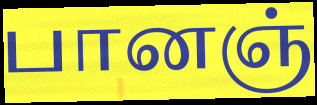
பானஞ்